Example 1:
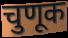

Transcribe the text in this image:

चुणूक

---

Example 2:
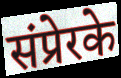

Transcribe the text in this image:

संप्रेरके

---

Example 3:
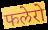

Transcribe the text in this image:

फलेरो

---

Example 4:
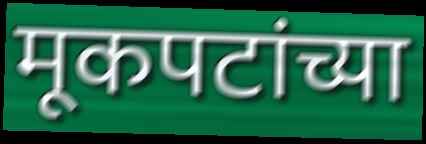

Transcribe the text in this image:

मूकपटांच्या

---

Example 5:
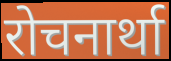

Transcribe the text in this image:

रोचनार्था